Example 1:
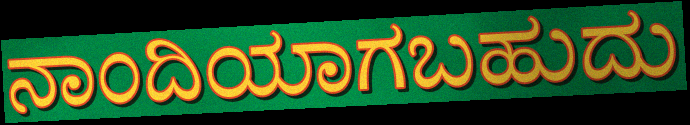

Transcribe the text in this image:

ನಾಂದಿಯಾಗಬಹುದು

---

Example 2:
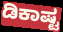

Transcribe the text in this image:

ಡಿಕಾಷ್ಟ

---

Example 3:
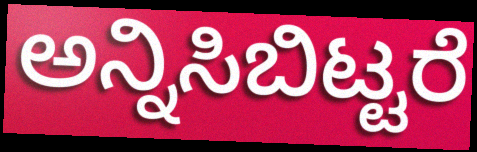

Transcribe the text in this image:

ಅನ್ನಿಸಿಬಿಟ್ಟರೆ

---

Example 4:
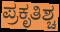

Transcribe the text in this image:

ಪ್ರಕೃತಿಶ್ಚ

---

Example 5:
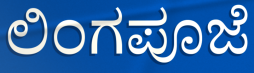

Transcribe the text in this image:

ಲಿಂಗಪೂಜೆ